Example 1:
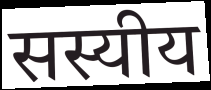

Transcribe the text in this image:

सस्यीय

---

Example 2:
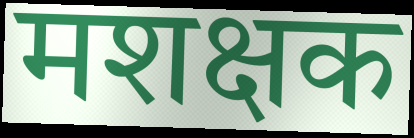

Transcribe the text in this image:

मशक्षक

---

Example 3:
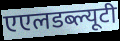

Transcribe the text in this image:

एएलडब्ल्यूटी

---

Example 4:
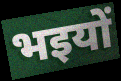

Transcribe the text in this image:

भइयों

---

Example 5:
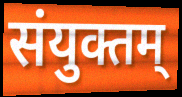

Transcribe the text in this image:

संयुक्तम्